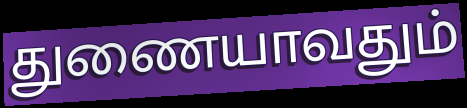
துணையாவதும்